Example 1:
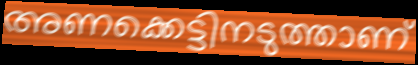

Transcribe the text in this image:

അണക്കെട്ടിനടുത്താണ്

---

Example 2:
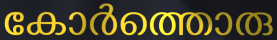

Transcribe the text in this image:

കോർത്തൊരു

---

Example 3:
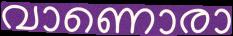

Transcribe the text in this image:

വാണൊരാ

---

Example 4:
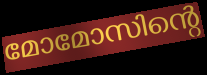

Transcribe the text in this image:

മോമോസിന്റെ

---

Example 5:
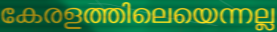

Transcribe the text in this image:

കേരളത്തിലെയെന്നല്ല